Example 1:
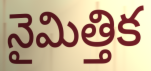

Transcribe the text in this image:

నైమిత్తిక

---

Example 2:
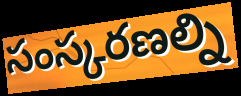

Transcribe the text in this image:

సంస్కరణల్ని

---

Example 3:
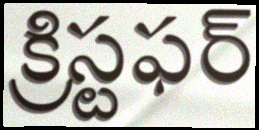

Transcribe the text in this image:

క్రిస్టఫర్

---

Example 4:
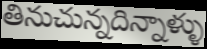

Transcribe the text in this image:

తినుచున్నదిన్నాళ్ళు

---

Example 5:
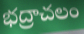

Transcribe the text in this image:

భద్రాచలం